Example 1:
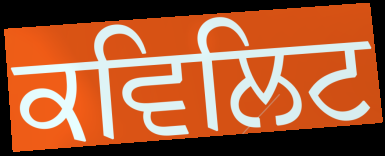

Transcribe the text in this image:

ਕਵਿਲਿਟ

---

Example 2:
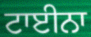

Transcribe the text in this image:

ਟਾਈਨਾ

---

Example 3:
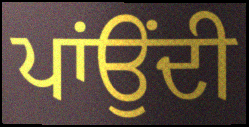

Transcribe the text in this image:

ਪਾਂਉਂਦੀ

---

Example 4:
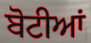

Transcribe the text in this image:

ਬੋਟੀਆਂ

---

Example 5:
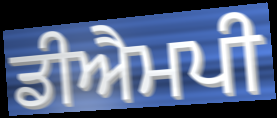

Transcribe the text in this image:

ਡੀਐਮਪੀ